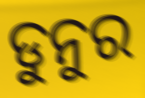
ଡୁନୁର